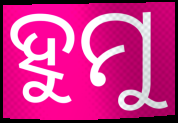
ହୁମୁ